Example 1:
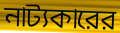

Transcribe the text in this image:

নাট্যকারের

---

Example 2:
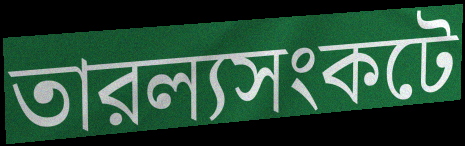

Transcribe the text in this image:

তারল্যসংকটে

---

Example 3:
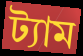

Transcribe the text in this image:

ট্যাম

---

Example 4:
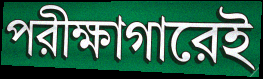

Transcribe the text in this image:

পরীক্ষাগারেই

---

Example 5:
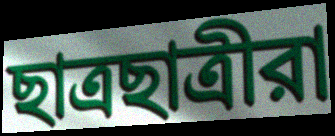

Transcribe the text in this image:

ছাত্রছাত্রীরা